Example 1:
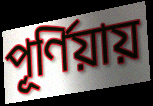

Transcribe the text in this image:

পূর্ণিয়ায়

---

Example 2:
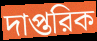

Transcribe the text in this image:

দাপ্তরিক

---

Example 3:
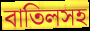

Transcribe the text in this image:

বাতিলসহ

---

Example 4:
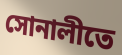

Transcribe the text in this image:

সোনালীতে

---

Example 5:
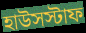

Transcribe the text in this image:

হাউসস্টাফ